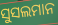
ସୁସଲମାନ